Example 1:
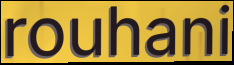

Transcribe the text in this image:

rouhani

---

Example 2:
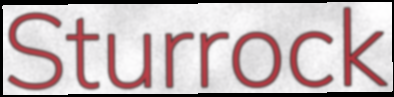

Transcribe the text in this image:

Sturrock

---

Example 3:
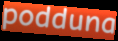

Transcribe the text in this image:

podduna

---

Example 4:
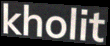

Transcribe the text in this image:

kholit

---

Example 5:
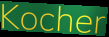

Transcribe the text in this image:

Kocher